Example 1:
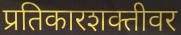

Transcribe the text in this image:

प्रतिकारशक्तीवर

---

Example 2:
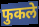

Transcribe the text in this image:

फुकले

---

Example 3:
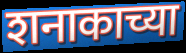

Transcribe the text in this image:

शनाकाच्या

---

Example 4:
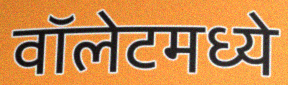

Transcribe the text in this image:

वॉलेटमध्ये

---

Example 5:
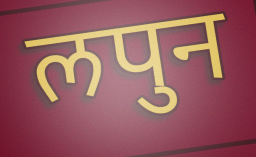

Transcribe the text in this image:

लपुन